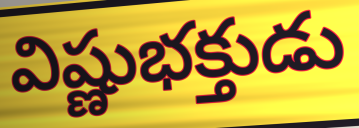
విష్ణుభక్తుడు